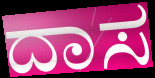
ದಾಸ